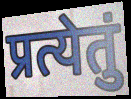
प्रत्येतुं